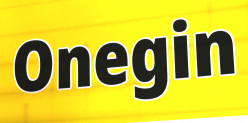
Onegin